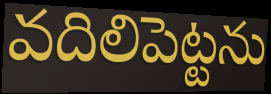
వదిలిపెట్టను